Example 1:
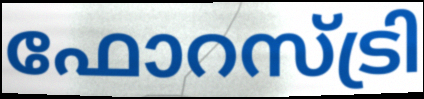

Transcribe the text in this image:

ഫോറസ്ട്രി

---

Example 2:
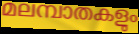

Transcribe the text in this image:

മലമ്പാതകളും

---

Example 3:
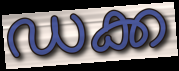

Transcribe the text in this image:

ഡക്ക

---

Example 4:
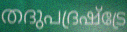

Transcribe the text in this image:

തദുപദ്രഷ്ട്രേ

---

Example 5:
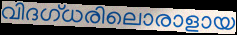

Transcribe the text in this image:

വിദഗ്ധരിലൊരാളായ